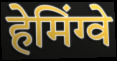
हेमिंग्वे